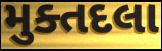
મુક્તદલા